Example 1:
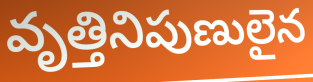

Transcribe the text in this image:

వృత్తినిపుణులైన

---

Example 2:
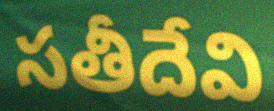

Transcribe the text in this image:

సతీదేవి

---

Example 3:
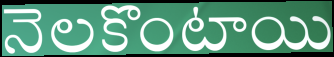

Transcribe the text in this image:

నెలకొంటాయి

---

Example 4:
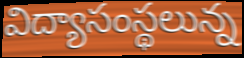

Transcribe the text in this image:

విద్యాసంస్థలున్న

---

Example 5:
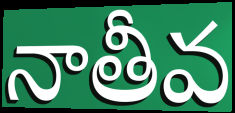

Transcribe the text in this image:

నాతీవ